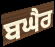
ਬਘੈਰ